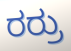
ರರ್ರು